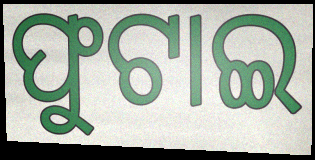
ଫୁଟାଇ